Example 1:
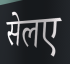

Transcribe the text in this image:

सेलए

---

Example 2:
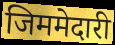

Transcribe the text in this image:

जिममेदारी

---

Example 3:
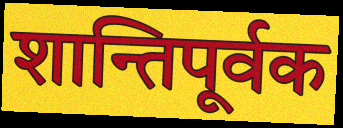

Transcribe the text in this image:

शान्तिपूर्वक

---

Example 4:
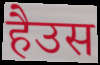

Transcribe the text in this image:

हैउस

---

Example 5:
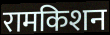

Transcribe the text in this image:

रामकिशन